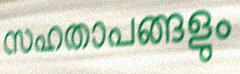
സഹതാപങ്ങളും